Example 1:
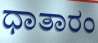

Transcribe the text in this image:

ಧಾತಾರಂ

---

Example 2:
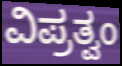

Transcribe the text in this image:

ವಿಪ್ರತ್ವಂ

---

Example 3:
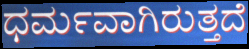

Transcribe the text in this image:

ಧರ್ಮವಾಗಿರುತ್ತದೆ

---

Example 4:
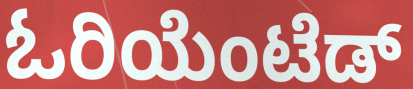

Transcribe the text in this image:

ಓರಿಯೆಂಟೆಡ್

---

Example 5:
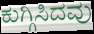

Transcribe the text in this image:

ಕುಗ್ಗಿಸಿದವು